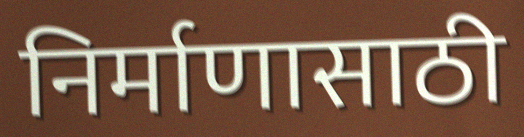
निर्माणासाठी